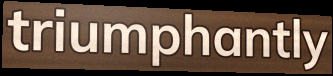
triumphantly